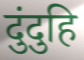
दुंदुहि